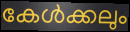
കേൾക്കലും